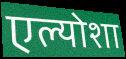
एल्योशा